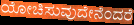
ಯೋಚಿಸುವುದೇನೆಂದರೆ